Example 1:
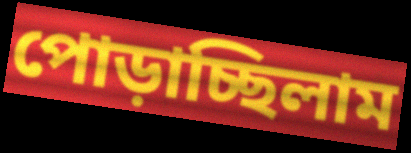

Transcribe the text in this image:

পোড়াচ্ছিলাম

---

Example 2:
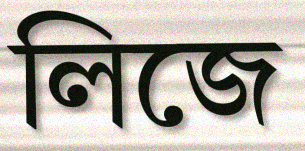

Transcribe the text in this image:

লিজে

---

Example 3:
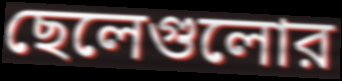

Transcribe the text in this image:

ছেলেগুলোর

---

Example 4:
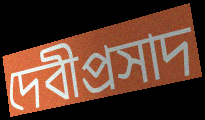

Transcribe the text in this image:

দেবীপ্রসাদ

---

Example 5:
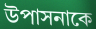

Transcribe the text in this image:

উপাসনাকে